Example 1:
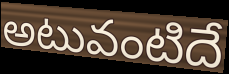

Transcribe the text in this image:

అటువంటిదే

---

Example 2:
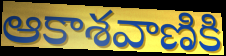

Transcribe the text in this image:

ఆకాశవాణికి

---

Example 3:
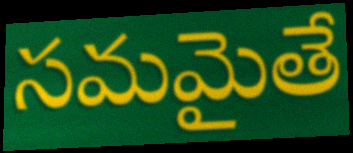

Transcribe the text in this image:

సమమైతే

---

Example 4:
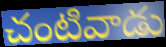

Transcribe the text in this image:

చంటివాడు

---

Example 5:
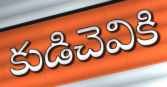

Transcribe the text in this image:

కుడిచెవికి